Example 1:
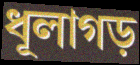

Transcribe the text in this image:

ধূলাগড়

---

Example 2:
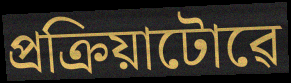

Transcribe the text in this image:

প্ৰক্ৰিয়াটোৱে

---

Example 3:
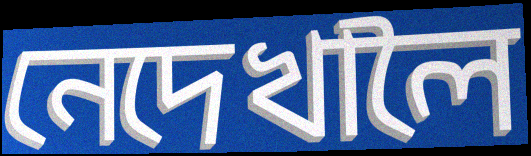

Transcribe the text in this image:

নেদেখালৈ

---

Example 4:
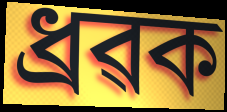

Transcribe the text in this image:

ধ্ৰৱক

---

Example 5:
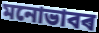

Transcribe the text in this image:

মনোভাবৰ